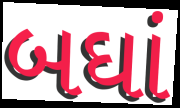
બઘાં